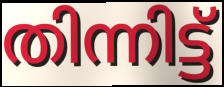
തിന്നിട്ട്